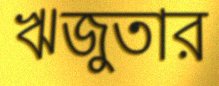
ঋজুতার